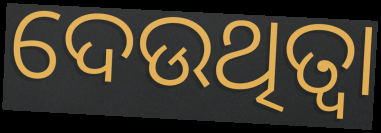
ଦେଉଥିତ୍ବା